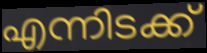
എന്നിടക്ക്